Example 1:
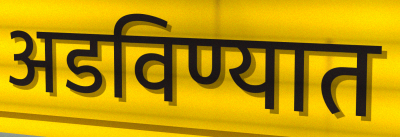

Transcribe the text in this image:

अडविण्यात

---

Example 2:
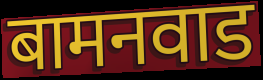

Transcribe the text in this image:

बामनवाड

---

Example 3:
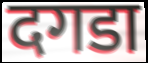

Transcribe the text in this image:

दगडा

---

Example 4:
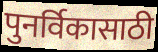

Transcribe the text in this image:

पुनर्विकासाठी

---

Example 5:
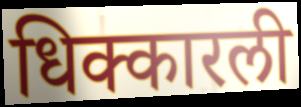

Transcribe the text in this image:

धिक्कारली